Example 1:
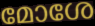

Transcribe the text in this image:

മോശേ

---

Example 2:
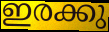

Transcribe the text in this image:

ഇരക്കു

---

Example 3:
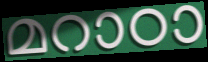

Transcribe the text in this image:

മറാഠാ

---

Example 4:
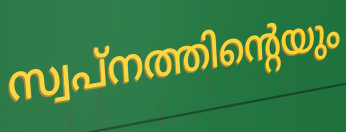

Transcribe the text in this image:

സ്വപ്നത്തിന്റെയും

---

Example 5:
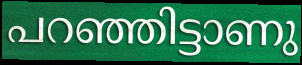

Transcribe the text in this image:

പറഞ്ഞിട്ടാണു